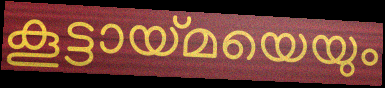
കൂട്ടായ്മയെയും